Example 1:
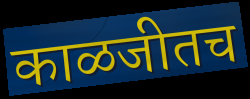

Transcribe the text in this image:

काळजीतच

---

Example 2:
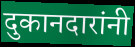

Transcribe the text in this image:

दुकानदारांनी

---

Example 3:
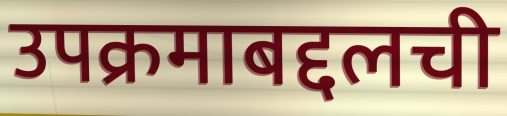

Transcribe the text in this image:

उपक्रमाबद्दलची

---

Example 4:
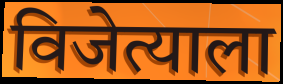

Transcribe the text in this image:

विजेत्याला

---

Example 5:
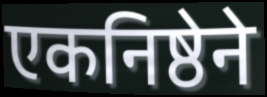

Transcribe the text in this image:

एकनिष्ठेने